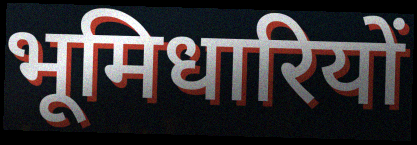
भूमिधारियों